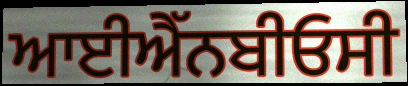
ਆਈਐੱਨਬੀਓਸੀ